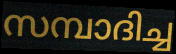
സമ്പാദിച്ച